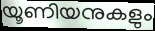
യൂണിയനുകളും